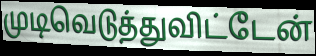
முடிவெடுத்துவிட்டேன்